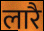
लारै